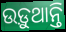
ଉଡ଼ୁଥାନ୍ତି